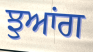
ਝੁਆਂਗ